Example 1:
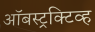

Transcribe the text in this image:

ऑबस्ट्रक्टिव्ह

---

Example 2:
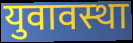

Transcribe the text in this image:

युवावस्था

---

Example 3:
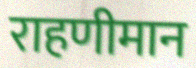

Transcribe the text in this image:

राहणीमान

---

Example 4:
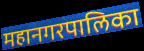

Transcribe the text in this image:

महानगरपालिका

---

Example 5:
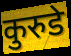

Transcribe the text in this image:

कुरुडे